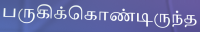
பருகிக்கொண்டிருந்த